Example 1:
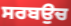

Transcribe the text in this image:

ਸਰਬਉਚ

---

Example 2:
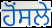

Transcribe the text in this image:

ਹੋਂਸਲੇ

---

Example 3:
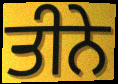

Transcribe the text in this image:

ਤੀਨੇ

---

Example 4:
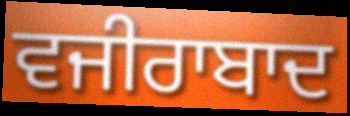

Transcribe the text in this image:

ਵਜੀਰਾਬਾਦ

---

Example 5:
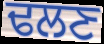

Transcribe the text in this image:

ਢਲਣ